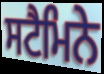
ਸਟੈਮਿਨੇ